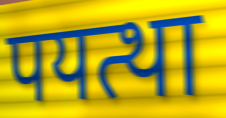
पयत्था